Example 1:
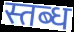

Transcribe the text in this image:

स्तब्ध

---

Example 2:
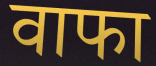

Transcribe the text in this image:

वाफा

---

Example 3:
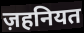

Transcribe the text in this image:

ज़हनियत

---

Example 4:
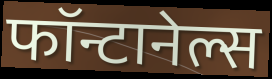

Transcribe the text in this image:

फॉन्टानेल्स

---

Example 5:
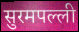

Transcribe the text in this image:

सुरमपल्ली